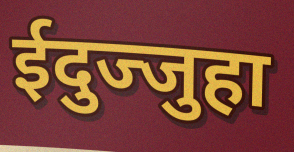
ईदुज्जुहा